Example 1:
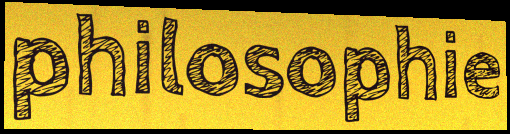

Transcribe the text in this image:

philosophie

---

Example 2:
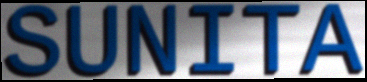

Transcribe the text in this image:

SUNITA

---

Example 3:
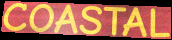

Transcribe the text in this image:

COASTAL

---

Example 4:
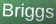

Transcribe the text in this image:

Briggs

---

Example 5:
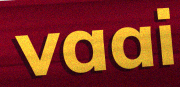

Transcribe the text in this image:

vaai